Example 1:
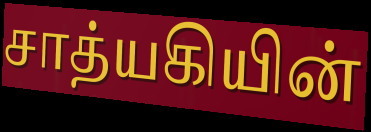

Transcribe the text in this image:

சாத்யகியின்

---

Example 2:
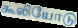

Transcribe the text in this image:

கூலியோடு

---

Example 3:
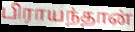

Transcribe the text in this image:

பிராயந்தான்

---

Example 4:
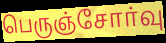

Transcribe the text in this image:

பெருஞ்சோர்வு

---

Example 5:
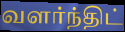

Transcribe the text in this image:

வளர்ந்திட்